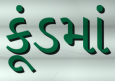
કૂંડમાં